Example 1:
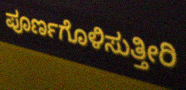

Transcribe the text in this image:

ಪೂರ್ಣಗೊಳಿಸುತ್ತೀರಿ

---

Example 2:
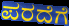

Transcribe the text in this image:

ಪರದೆಗೆ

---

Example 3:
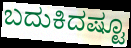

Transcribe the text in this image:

ಬದುಕಿದಷ್ಟೂ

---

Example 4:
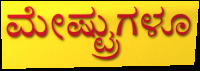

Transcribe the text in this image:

ಮೇಷ್ಟ್ರುಗಳೂ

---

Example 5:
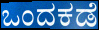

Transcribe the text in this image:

ಒಂದಕಡೆ